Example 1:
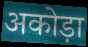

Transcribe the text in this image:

अकोड़ा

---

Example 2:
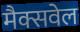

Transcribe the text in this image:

मैक्सवेल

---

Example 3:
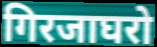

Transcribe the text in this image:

गिरजाघरो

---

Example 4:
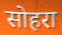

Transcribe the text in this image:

सोहरा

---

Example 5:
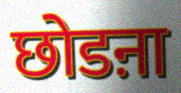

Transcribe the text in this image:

छोडऩा